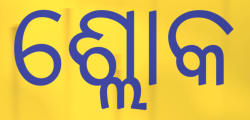
ଶ୍ଲୋକ